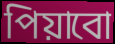
পিয়াবো